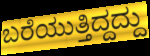
ಬರೆಯುತ್ತಿದ್ದದ್ದು